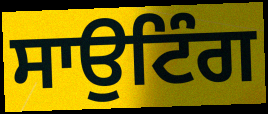
ਸਾਉਟਿੰਗ